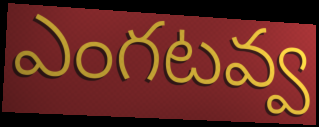
ఎంగటవ్వ